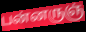
பன்னருஞ்